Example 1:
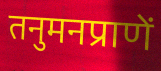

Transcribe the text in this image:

तनुमनप्राणें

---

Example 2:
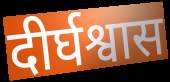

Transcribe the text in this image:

दीर्घश्वास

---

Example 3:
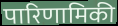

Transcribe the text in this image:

पारिणामिकी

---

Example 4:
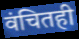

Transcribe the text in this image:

वंचितही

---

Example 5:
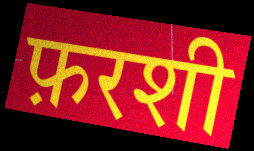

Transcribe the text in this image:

फ़रशी